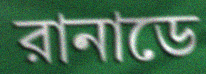
রানাডে